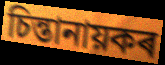
চিন্তানায়কৰ